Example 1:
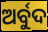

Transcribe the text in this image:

ଅର୍ବୁଦ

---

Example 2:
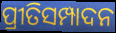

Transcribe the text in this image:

ପ୍ରୀତିସମ୍ପାଦନ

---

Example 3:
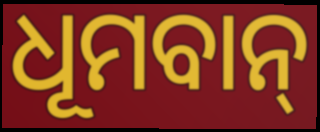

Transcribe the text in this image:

ଧୂମବାନ୍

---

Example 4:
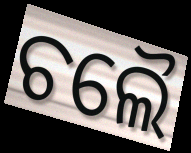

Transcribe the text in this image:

ଚଲୈ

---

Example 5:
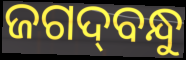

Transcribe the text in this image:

ଜଗଦ୍‌ବନ୍ଧୁ